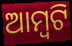
ଆମ୍ୱଟି